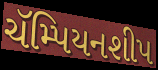
ચૅમ્પિયનશીપ